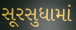
સૂરસુધામાં